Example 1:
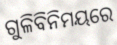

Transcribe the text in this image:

ଗୁଳିବିନିମୟରେ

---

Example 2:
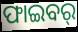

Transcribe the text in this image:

ଫାଇବର୍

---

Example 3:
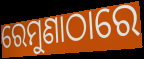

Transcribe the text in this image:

ରେମୁଣାଠାରେ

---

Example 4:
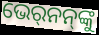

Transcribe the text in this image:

ଭେର୍‍ନନ୍‌ଙ୍କୁ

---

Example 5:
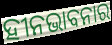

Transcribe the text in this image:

ହୀନଭାବନାର